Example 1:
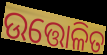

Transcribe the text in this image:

ଉତ୍ତୋଳିତ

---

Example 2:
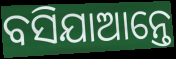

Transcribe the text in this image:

ବସିଯାଆନ୍ତେ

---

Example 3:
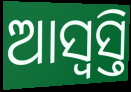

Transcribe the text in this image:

ଆସ୍ୱସ୍ତି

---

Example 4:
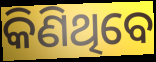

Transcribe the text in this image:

କିଣିଥିବେ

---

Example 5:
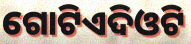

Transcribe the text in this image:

ଗୋଟିଏଦିଓଟି